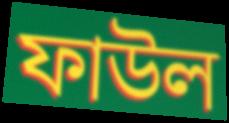
ফাউল